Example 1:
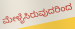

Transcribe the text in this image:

ಮೇಳೈಸಿರುವುದರಿಂದ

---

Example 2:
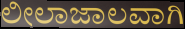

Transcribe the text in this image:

ಲೀಲಾಜಾಲವಾಗಿ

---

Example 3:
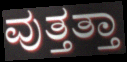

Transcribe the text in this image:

ವುತ್ತತ್ತಾ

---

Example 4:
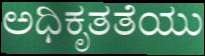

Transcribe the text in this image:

ಅಧಿಕೃತತೆಯು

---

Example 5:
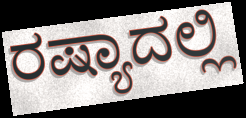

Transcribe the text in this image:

ರಷ್ಯಾದಲ್ಲಿ